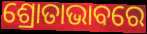
ଶ୍ରୋତାଭାବରେ